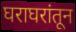
घराघरांतून